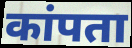
कांपता